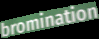
bromination